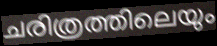
ചരിത്രത്തിലെയും